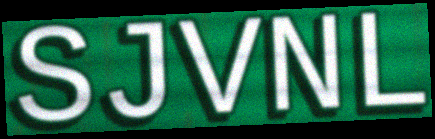
SJVNL